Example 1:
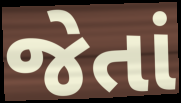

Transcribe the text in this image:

જેતાં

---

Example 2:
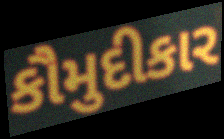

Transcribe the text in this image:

કૌમુદીકાર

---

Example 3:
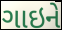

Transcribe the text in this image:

ગાઇને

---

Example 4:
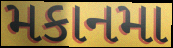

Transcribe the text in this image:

મકાનમા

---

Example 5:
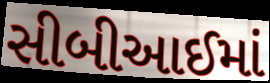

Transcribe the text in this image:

સીબીઆઈમાં